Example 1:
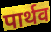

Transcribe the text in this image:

पार्थव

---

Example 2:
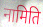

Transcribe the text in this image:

नामिति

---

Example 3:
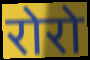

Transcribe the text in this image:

रोरो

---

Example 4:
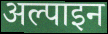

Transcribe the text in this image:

अल्पाइन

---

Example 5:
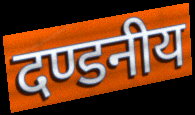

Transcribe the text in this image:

दण्डनीय